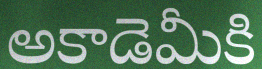
అకాడెమీకి